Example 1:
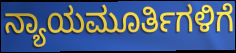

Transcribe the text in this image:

ನ್ಯಾಯಮೂರ್ತಿಗಳಿಗೆ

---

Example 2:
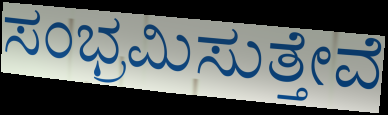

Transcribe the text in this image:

ಸಂಭ್ರಮಿಸುತ್ತೇವೆ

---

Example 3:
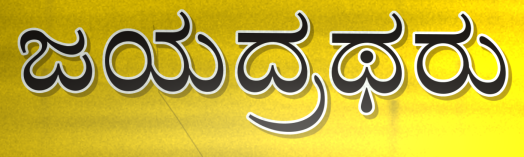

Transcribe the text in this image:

ಜಯದ್ರಥರು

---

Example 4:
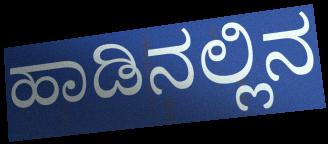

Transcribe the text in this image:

ಹಾಡಿನಲ್ಲಿನ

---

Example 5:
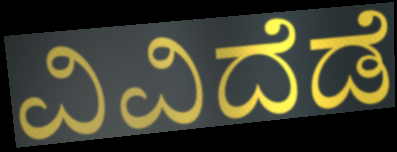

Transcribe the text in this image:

ವಿವಿದೆಡೆ